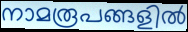
നാമരൂപങ്ങളിൽ